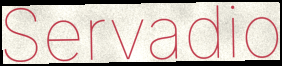
Servadio